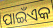
ପାଇଁଏକ